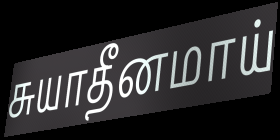
சுயாதீனமாய்